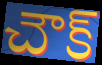
చౌక్